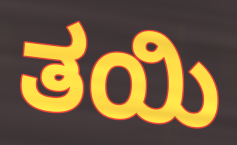
ತಯಿ